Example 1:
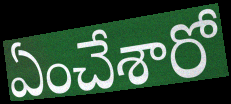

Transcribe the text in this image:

ఏంచేశారో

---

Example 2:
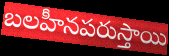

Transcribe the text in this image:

బలహీనపరుస్తాయి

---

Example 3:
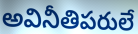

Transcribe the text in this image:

అవినీతిపరులే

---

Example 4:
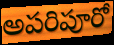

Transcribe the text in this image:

అపరిపూరో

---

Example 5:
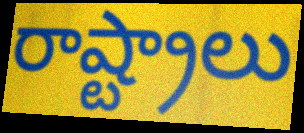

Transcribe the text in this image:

రాష్ట్రాలు